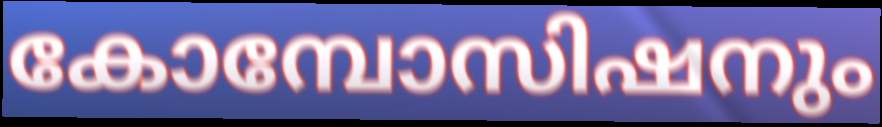
കോമ്പോസിഷനും